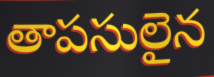
తాపసులైన